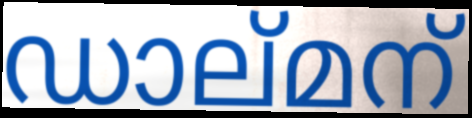
ഡാല്മന്